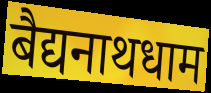
बैद्यनाथधाम